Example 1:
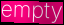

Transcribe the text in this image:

empty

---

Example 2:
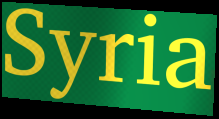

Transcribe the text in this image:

Syria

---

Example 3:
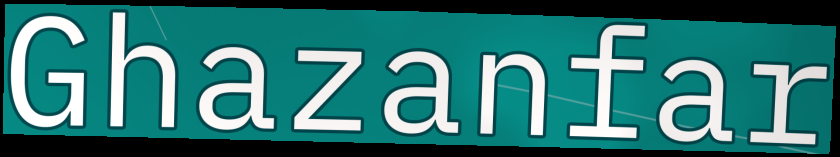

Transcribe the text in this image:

Ghazanfar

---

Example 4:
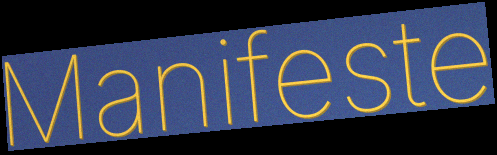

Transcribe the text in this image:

Manifeste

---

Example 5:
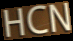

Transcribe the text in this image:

HCN